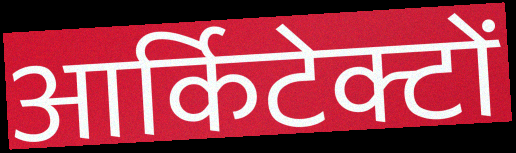
आर्किटेक्टों